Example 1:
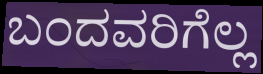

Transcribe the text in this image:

ಬಂದವರಿಗೆಲ್ಲ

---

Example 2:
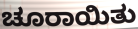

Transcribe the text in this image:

ಚೂರಾಯಿತು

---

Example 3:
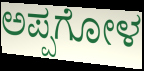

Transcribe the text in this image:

ಅಪ್ಪಗೋಳ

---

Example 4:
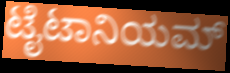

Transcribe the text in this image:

ಟೈಟಾನಿಯಮ್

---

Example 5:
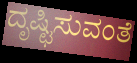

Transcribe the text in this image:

ದೃಷ್ಟಿಸುವಂತೆ